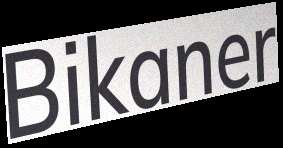
Bikaner